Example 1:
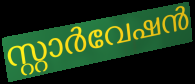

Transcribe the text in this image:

സ്റ്റാർവേഷൻ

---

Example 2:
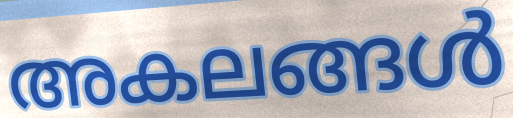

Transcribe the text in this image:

അകലങ്ങൾ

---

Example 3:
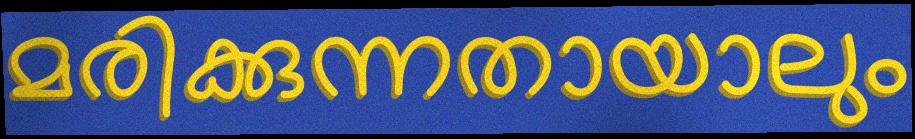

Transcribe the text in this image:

മരിക്കുന്നതായാലും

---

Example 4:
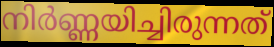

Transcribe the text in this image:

നിർണ്ണയിച്ചിരുന്നത്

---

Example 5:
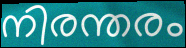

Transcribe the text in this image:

നിരന്തരം